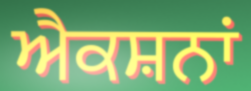
ਐਕਸ਼ਨਾਂ